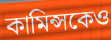
কামিন্সকেও